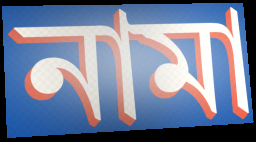
নামা